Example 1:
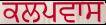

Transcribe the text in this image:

ਕਲਪਵਾਸ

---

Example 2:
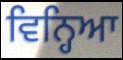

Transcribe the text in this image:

ਵਿਨ੍ਹਿਆ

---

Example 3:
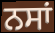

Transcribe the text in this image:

ਨਸਾਂ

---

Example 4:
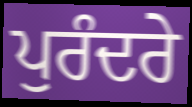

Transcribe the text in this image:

ਪੁਰੰਦਰੇ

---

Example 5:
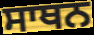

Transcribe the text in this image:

ਸਾਥਨ